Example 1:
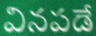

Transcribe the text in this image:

వినపడే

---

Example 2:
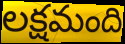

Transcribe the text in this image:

లక్షమంది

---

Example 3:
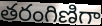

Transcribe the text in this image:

తరంగిణిగా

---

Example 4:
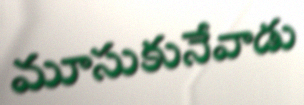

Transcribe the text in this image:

మూసుకునేవాడు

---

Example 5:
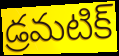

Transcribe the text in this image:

డ్రమటిక్